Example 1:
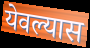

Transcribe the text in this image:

येवल्यास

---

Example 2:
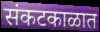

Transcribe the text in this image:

संकटकाळात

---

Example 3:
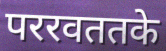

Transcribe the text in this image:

पररवततके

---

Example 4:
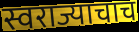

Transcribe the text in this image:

स्वराज्याचाच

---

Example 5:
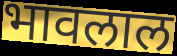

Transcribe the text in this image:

भावलाल